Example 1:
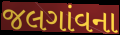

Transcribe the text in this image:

જલગાંવના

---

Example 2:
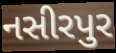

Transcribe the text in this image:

નસીરપુર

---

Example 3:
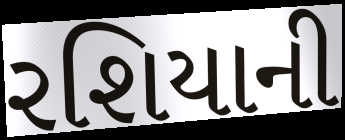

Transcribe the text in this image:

રશિયાની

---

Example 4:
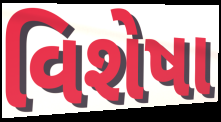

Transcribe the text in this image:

વિશેષા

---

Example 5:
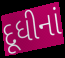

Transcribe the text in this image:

દૂધીનાં